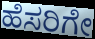
ಹೆಸರಿಗೇ